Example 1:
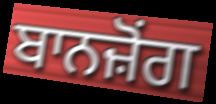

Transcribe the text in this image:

ਬਾਨਜ਼ੋਂਗ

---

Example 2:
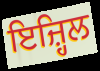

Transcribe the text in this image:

ਇਜ਼੍ਹਿਲ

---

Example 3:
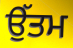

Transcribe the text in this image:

ਉੱਤਮ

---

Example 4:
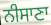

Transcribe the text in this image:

ਨੀਸਾਣਾ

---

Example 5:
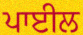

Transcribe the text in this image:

ਪਾਈਲ